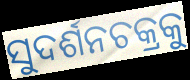
ସୁଦର୍ଶନଚକ୍ରକୁ